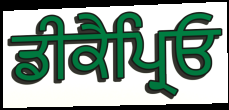
ਡੀਕੈਪ੍ਰਿਓ